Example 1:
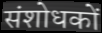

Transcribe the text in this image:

संशोधकों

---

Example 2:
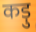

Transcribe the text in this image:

कड़ु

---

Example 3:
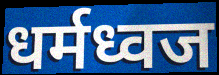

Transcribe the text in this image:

धर्मध्वज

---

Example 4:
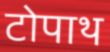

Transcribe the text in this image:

टोपाथ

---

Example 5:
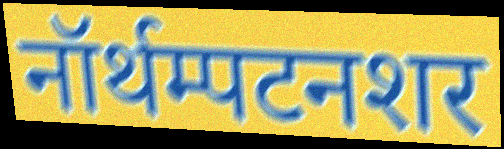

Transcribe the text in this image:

नॉर्थम्पटनशर